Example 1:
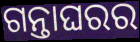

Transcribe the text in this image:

ଗନ୍ତାଘରର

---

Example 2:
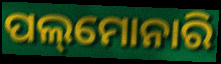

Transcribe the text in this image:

ପଲ୍‌ମୋନାରି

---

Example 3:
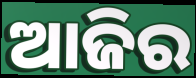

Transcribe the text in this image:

ଆଜିର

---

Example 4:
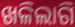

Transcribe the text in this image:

ଖଳିଲାଗି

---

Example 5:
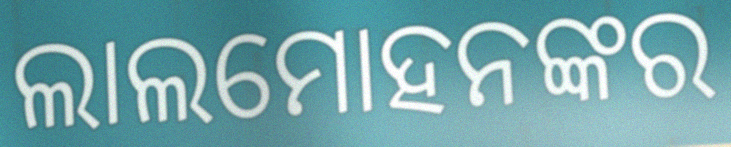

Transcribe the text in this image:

ଲାଲମୋହନଙ୍କର